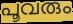
പൂവരും